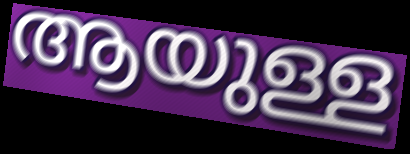
ആയുള്ള